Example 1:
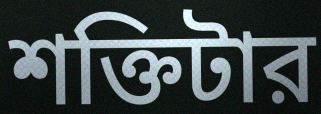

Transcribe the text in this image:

শক্তিটার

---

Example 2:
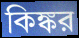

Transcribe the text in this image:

কিঙ্কর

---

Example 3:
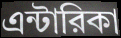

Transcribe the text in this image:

এন্টারিকা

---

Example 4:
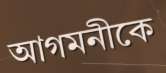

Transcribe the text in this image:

আগমনীকে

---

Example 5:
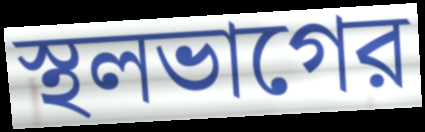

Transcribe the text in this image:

স্থলভাগের